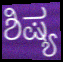
ಶಿಷ್ಯ